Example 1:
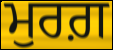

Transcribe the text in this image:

ਮੁਰਗ਼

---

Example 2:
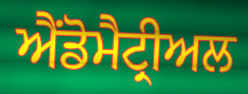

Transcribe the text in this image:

ਐਂਡੋਮੈਟ੍ਰੀਅਲ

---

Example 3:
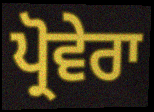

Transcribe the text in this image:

ਪ੍ਰੋਵੇਰਾ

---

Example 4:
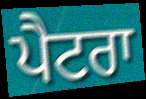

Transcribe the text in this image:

ਪੈਟਰਾ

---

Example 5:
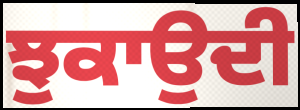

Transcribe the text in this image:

ਝੁਕਾਉਦੀ